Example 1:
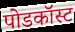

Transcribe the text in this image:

पोडकॉस्ट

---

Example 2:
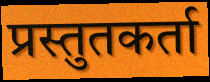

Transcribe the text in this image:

प्रस्तुतकर्ता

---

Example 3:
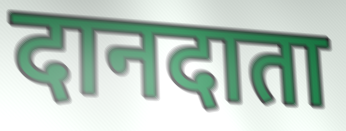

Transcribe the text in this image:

दानदाता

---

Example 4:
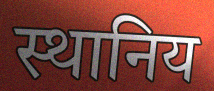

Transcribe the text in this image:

स्थानिय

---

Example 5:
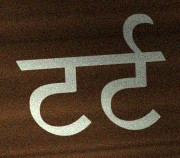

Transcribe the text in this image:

टर्ट